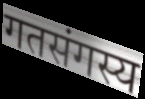
गतसंगस्य